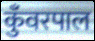
कुँवरपाल